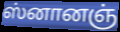
ஸ்னானஞ்